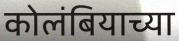
कोलंबियाच्या